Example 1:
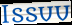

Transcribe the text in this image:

Issuu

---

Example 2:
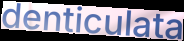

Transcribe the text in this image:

denticulata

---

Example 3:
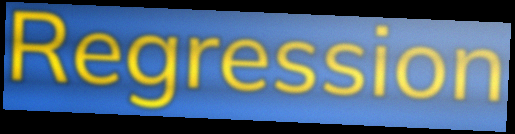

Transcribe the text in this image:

Regression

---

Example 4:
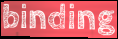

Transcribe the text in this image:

binding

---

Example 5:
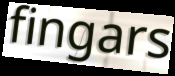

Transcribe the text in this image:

fingars